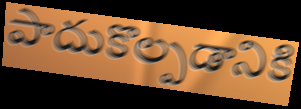
పాదుకొల్పడానికి